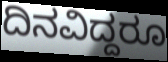
ದಿನವಿದ್ದರೂ